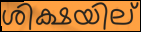
ശിക്ഷയില്